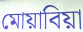
মোয়াবিয়া